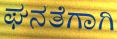
ಘನತೆಗಾಗಿ